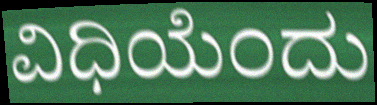
ವಿಧಿಯೆಂದು